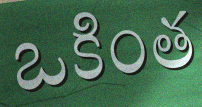
ఒకింత